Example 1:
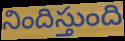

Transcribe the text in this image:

నిందిస్తుంది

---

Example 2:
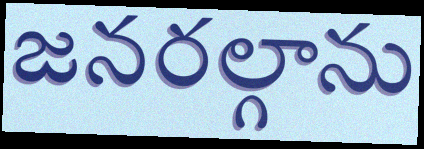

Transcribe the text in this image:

జనరల్గాను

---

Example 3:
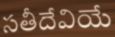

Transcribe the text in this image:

సతీదేవియే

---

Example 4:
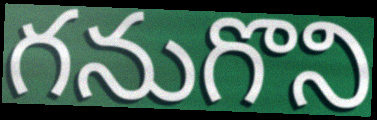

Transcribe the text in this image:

గనుగొని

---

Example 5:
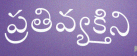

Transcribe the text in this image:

ప్రతివ్యక్తిని